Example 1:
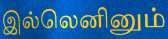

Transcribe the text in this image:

இல்லெனினும்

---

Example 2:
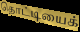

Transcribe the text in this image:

தொட்டியைக்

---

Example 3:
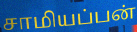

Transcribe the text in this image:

சாமியப்பன்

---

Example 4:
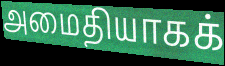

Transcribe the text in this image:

அமைதியாகக்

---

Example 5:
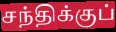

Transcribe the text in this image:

சந்திக்குப்